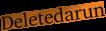
Deletedarun